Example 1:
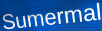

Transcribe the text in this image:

Sumermal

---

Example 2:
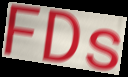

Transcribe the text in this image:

FDs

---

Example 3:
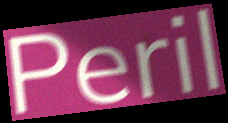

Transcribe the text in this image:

Peril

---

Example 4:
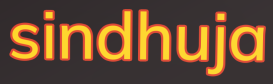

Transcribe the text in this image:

sindhuja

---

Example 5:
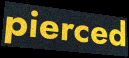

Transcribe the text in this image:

pierced